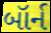
બૉર્ન